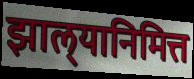
झाल्यानिमित्त